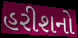
હરીશનો